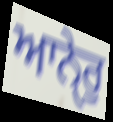
ਆਨੇੑਰੁ